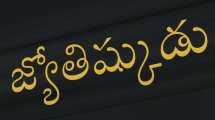
జ్యోతిష్కుడు